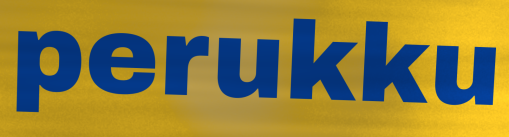
perukku